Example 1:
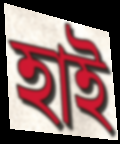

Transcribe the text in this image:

হাই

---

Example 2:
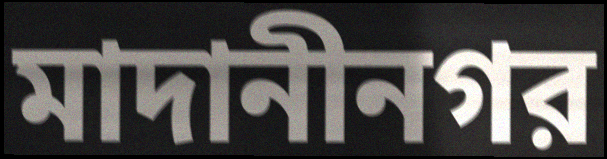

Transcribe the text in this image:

মাদানীনগর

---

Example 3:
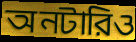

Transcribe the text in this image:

অনটারিও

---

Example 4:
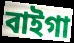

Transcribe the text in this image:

বাইগা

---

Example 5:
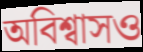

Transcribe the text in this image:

অবিশ্বাসও